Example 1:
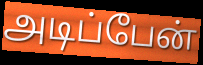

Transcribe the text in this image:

அடிப்பேன்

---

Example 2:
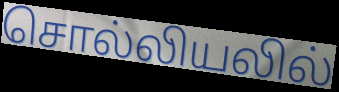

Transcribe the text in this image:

சொல்லியலில்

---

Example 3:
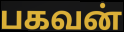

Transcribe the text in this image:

பகவன்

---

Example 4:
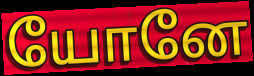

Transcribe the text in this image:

யோனே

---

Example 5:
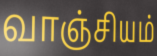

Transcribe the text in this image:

வாஞ்சியம்